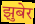
झुबेर